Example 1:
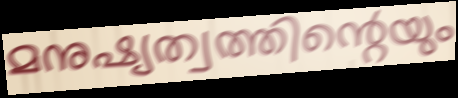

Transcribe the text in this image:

മനുഷ്യത്വത്തിന്റെയും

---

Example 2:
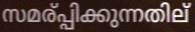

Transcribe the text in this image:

സമര്പ്പിക്കുന്നതില്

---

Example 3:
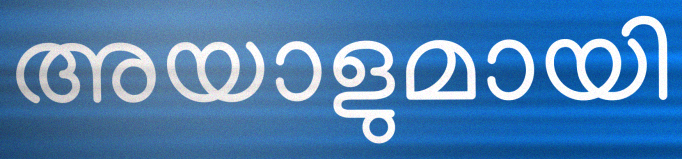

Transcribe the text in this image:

അയാളുമായി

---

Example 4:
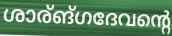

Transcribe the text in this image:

ശാര്ങ്ഗദേവന്റെ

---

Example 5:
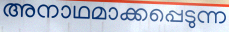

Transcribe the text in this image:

അനാഥമാക്കപ്പെടുന്ന